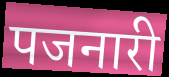
पजनारी